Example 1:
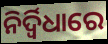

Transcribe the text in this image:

ନିର୍ଦ୍ୱିଧାରେ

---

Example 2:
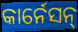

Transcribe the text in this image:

କାର୍ନେସନ୍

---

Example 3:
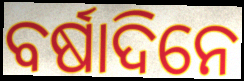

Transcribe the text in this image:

ବର୍ଷାଦିନେ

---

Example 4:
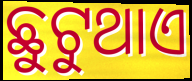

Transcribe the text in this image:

ଛୁଟୁଥାଏ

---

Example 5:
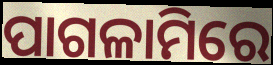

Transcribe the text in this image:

ପାଗଳାମିରେ